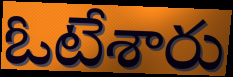
ఓటేశారు